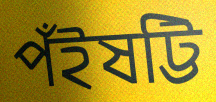
পঁইষট্টি